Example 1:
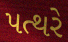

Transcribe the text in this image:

પત્થરે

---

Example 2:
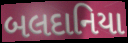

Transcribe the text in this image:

બલદાનિયા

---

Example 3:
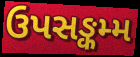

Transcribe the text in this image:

ઉપસઙ્કમ્મ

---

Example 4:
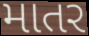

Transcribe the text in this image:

માતર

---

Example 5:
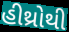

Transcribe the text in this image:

હીથ્રોથી